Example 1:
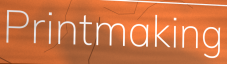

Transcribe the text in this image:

Printmaking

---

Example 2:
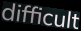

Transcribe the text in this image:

difficult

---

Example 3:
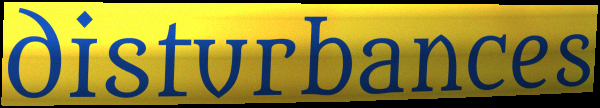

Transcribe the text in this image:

disturbances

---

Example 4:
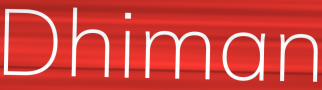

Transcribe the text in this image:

Dhiman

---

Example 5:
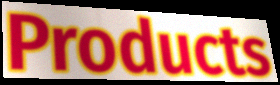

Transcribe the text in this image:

Products